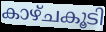
കാഴ്ചകൂടി